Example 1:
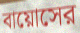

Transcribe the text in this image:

বায়োসের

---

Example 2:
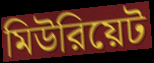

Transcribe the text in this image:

মিউরিয়েট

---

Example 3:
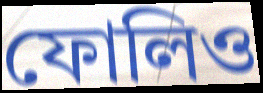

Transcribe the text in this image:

ফোলিও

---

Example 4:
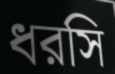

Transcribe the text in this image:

ধরসি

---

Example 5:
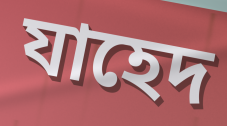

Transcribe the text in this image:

যাহেদ